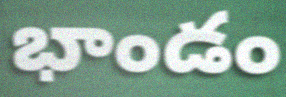
భాండం